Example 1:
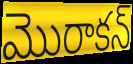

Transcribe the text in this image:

మొరాకన్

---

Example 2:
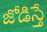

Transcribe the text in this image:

జోడిస్తే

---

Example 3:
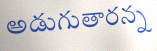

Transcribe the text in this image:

అడుగుతారన్న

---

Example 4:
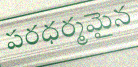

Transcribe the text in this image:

పరధర్మమైన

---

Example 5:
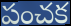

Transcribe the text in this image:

పంచక